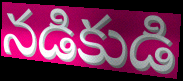
నడికుడి